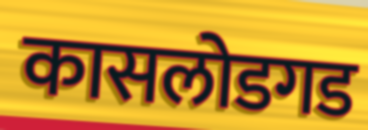
कासलोडगड